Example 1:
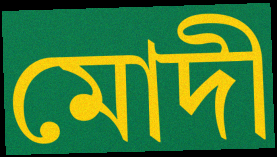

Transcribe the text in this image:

মোদী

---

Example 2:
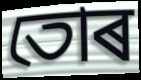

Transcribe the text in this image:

তোৰ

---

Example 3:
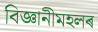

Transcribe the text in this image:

বিজ্ঞানীমহলৰ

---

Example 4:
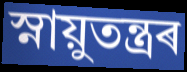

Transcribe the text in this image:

স্নায়ুতন্ত্ৰৰ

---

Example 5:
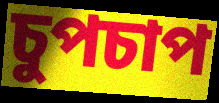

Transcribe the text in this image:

চুপচাপ